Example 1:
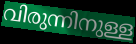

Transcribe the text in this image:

വിരുന്നിനുള്ള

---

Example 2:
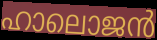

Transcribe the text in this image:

ഹാലൊജൻ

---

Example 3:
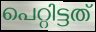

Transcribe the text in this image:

പെറ്റിട്ടത്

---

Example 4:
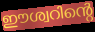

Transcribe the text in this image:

ഈശ്വറിന്റെ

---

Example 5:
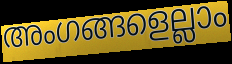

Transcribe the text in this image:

അംഗങ്ങളെല്ലാം